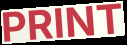
PRINT